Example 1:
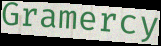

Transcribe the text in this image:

Gramercy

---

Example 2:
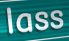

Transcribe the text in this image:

lass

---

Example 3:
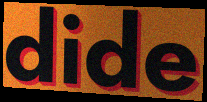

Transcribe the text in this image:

dide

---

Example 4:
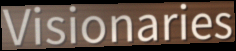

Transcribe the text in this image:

Visionaries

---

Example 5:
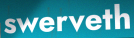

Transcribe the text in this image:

swerveth